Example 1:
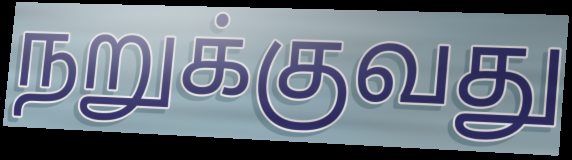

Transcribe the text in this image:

நறுக்குவது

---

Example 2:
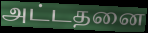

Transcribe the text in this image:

அட்டதனை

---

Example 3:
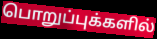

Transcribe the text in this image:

பொறுப்புக்களில்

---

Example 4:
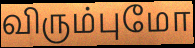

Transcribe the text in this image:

விரும்புமோ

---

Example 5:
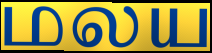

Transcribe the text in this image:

மலய